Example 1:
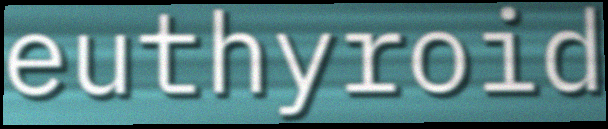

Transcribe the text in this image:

euthyroid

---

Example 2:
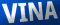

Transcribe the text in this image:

VINA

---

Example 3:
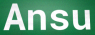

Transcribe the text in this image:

Ansu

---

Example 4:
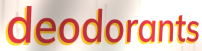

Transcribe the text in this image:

deodorants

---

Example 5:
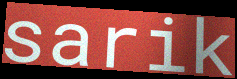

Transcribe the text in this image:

sarik